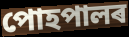
পোহপালৰ